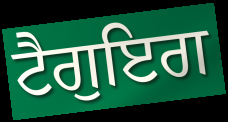
ਟੈਗੁਇਗ